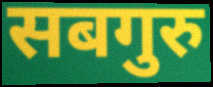
सबगुरु